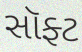
સૉફ્ટ